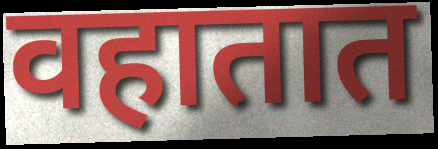
वहातात